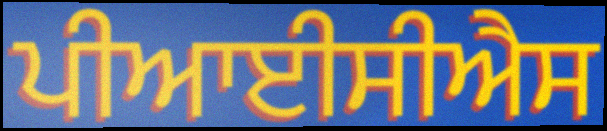
ਪੀਆਈਸੀਐਸ